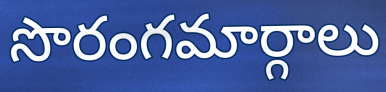
సొరంగమార్గాలు